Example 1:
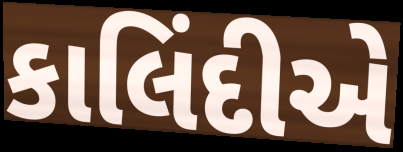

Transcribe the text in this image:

કાલિંદીએ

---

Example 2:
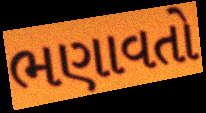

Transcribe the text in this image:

ભણાવતો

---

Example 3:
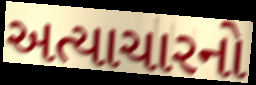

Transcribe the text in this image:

અત્યાચારનો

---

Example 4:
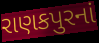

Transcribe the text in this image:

રાણકપુરનાં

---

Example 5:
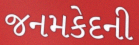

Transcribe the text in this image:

જનમકેદની